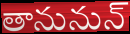
తానునున్